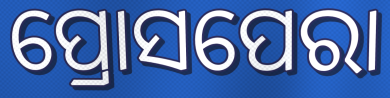
ପ୍ରୋସପେରା